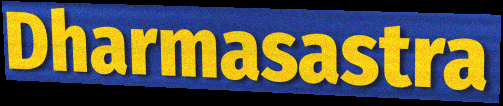
Dharmasastra